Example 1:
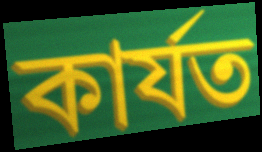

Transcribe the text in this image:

কাৰ্যত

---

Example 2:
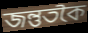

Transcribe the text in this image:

জন্তুতকৈ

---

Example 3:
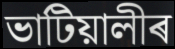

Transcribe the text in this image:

ভাটিয়ালীৰ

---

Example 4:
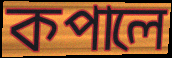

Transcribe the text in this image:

কপালে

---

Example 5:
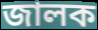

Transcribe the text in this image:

জালক